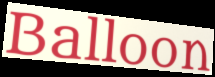
Balloon